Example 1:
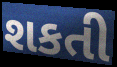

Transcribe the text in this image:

શકતી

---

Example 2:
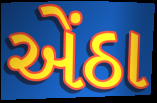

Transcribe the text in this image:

એંઠા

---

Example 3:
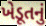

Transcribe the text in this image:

ખેડૂતનું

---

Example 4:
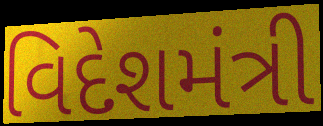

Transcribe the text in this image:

વિદેશમંત્રી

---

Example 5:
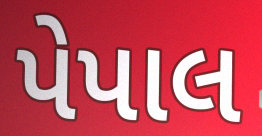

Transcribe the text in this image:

પેપાલ